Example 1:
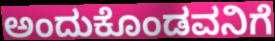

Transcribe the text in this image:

ಅಂದುಕೊಂಡವನಿಗೆ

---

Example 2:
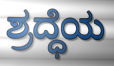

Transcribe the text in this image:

ಶ್ರದ್ಧೆಯ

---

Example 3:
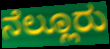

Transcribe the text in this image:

ನೆಲ್ಲೂರು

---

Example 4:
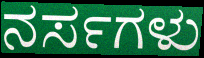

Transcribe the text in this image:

ನರ್ಸಗಳು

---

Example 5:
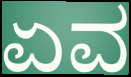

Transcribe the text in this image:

ಏವ